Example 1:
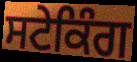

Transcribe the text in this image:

ਸਟੇਕਿੰਗ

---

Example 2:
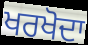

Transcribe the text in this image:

ਖਰਖੋਦਾ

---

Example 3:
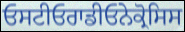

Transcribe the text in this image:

ਓਸਟੀਓਰਾਡੀਓਨੇਕ੍ਰੋਸਿਸ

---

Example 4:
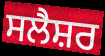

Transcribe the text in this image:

ਸਲੈਸ਼ਰ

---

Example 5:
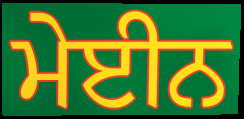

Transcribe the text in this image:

ਮੇਈਨ